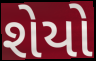
શેયો